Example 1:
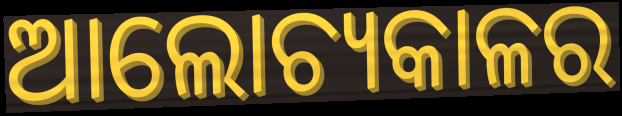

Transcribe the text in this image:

ଆଲୋଚ୍ୟକାଳର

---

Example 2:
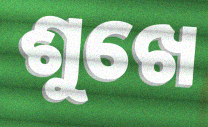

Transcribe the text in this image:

ଶୁଖେ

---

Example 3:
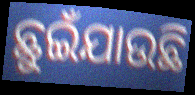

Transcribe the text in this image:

ଛୁଇଁଯାଉଛି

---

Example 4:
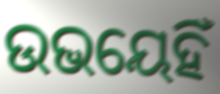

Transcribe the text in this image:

ଉଭୟେହିଁ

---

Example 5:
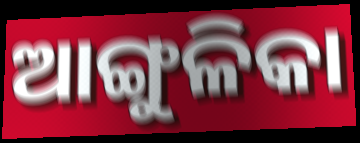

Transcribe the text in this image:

ଆଙ୍ଗୁଳିକା